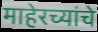
माहेरच्यांचे